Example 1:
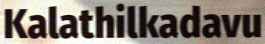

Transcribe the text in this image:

Kalathilkadavu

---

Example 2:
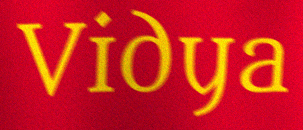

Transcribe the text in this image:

Vidya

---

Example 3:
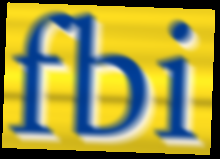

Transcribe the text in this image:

fbi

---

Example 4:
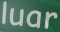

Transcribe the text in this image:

luar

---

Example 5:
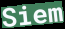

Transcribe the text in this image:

Siem